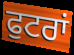
ਫੁਟਰਾਂ